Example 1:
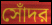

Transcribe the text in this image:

সোঁদর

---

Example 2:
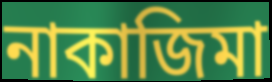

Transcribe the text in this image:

নাকাজিমা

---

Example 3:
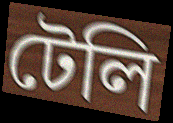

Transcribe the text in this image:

টেলি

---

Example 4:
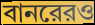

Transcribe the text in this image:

বানরেরও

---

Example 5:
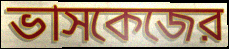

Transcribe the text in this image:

ভাসকেজের